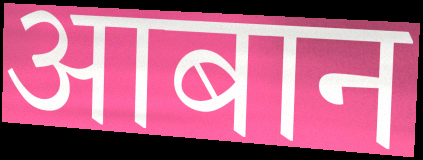
आबान